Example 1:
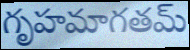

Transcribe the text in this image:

గృహమాగతమ్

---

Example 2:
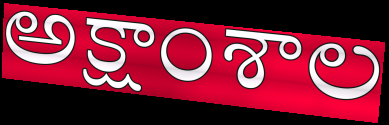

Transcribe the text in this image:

అక్షాంశాల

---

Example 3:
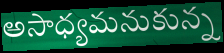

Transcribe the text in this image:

అసాధ్యమనుకున్న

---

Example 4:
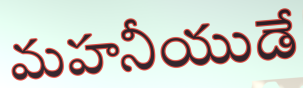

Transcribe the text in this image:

మహనీయుడే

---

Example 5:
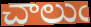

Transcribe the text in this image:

చాలుఁ